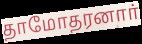
தாமோதரனார்